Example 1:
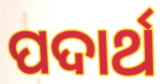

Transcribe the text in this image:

ପଦାର୍ଥ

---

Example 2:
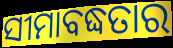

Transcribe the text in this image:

ସୀମାବଦ୍ଧତାର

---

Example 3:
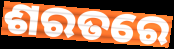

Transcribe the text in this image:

ଶରତରେ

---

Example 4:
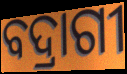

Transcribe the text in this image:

ବଦ୍ରାଗୀ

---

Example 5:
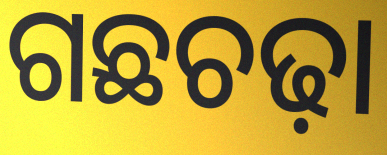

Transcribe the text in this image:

ଗଛଚଢ଼ା